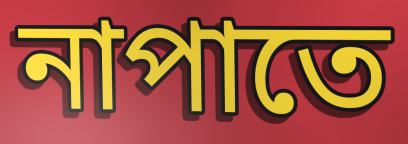
নাপাতে